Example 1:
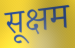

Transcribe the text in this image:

सूक्षम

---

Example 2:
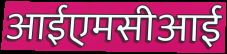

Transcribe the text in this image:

आईएमसीआई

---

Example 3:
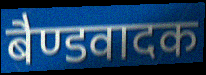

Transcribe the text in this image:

बैण्डवादक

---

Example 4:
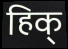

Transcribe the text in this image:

हिक्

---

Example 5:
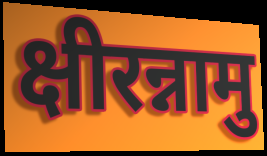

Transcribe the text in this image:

क्षीरन्नामु